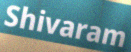
Shivaram